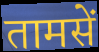
तामसें